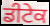
ਡੀਟੇਕ